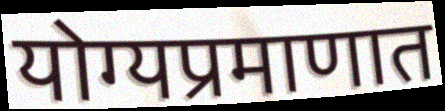
योग्यप्रमाणात